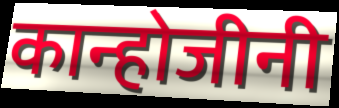
कान्होजीनी